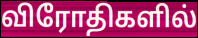
விரோதிகளில்